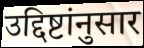
उद्दिष्टांनुसार